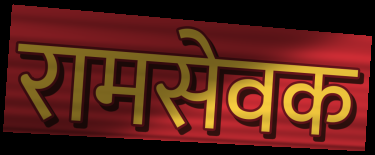
रामसेवक